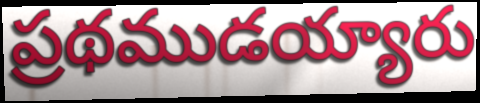
ప్రథముడయ్యారు